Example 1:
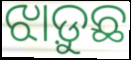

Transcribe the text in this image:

ଝାଡ଼ୁଛ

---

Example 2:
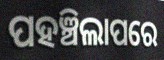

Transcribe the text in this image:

ପହଞ୍ଚିଲାପରେ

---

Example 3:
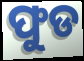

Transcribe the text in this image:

ଫୁଡ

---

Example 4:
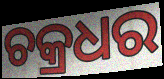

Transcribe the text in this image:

ଚକ୍ରଧର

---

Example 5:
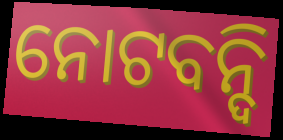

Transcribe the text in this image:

ନୋଟବନ୍ଦି